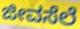
ಜೀವಸೆಲೆ